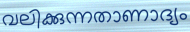
വലിക്കുന്നതാണാദ്യം